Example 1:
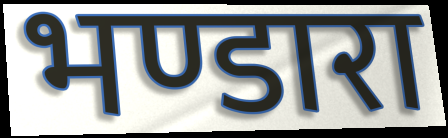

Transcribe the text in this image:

भण्डारा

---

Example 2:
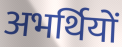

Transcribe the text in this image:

अभर्थियों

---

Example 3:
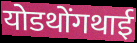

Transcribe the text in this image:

योडथोंगथाई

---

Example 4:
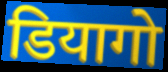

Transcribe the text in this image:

डियागो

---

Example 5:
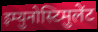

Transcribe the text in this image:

इम्युनोस्टिमुलेंट